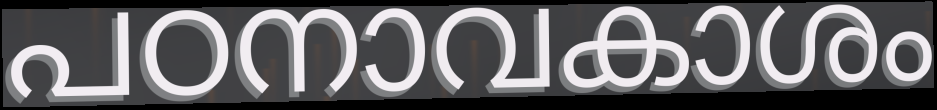
പഠനാവകാശം